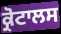
ਕ੍ਰੋਟਾਲਸ